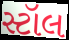
સ્ટૉલ